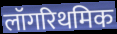
लॉगरिथमिक